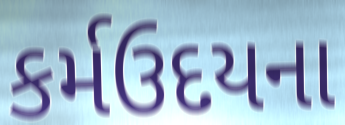
કર્મઉદયના